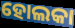
ହୋଲକା